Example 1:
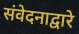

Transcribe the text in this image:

संवेदनाद्वारे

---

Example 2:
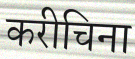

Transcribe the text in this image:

करीचिना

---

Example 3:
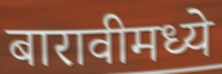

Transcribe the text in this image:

बारावीमध्ये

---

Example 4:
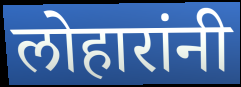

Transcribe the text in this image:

लोहारांनी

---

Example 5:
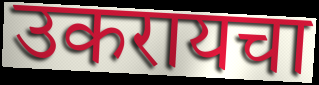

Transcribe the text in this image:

उकरायचा